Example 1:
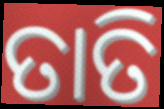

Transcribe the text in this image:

ତାତି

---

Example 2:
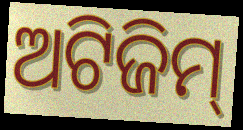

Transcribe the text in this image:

ଅଟିଜିମ୍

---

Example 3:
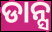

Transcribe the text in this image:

ଡାନ୍ସ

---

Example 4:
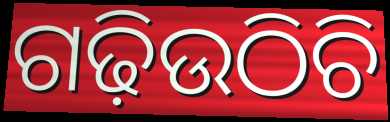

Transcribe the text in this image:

ଗଢ଼ିଉଠିଚି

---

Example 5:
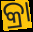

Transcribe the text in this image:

କ୍ରା